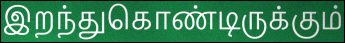
இறந்துகொண்டிருக்கும்